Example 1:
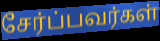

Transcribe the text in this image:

சேர்ப்பவர்கள்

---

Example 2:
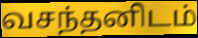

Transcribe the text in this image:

வசந்தனிடம்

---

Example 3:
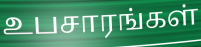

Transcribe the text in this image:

உபசாரங்கள்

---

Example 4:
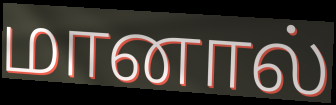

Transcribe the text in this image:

மானால்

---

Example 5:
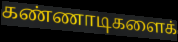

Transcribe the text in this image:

கண்ணாடிகளைக்